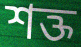
শক্ত